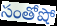
సంతోషో